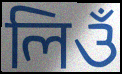
লিওঁ